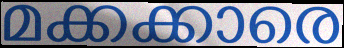
മക്കക്കാരെ